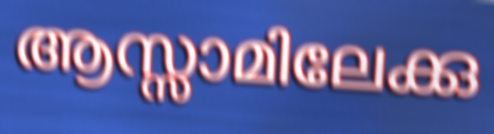
ആസ്സാമിലേക്കു